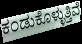
ಕಂಡುಕೊಳ್ಳುತ್ತಿವೆ